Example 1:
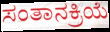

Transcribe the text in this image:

ಸಂತಾನಕ್ರಿಯೆ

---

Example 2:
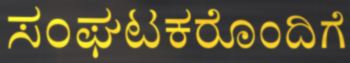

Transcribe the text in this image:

ಸಂಘಟಕರೊಂದಿಗೆ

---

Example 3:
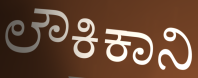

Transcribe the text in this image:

ಲೌಕಿಕಾನಿ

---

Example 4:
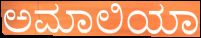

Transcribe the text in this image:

ಅಮಾಲಿಯಾ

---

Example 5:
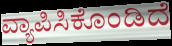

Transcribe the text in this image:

ವ್ಯಾಪಿಸಿಕೊಂಡಿದೆ